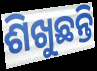
ଶିଖୁଛନ୍ତି